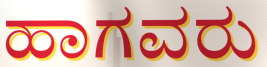
ಹಾಗವರು